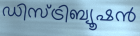
ഡിസ്ട്രിബ്യൂഷൻ